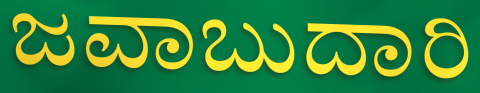
ಜವಾಬುದಾರಿ